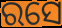
ରସେ